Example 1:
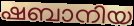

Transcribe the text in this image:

ഷബാനിയ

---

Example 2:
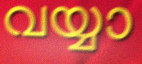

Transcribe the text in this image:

വയ്യാ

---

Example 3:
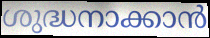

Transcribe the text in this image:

ശുദ്ധനാക്കാൻ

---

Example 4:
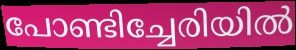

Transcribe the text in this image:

പോണ്ടിച്ചേരിയിൽ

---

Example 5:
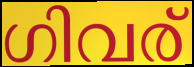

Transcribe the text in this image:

ഗിവര്